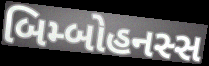
બિમ્બોહનસ્સ